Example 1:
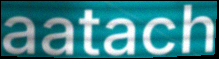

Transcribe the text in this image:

aatach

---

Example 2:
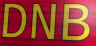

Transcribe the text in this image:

DNB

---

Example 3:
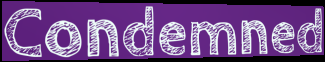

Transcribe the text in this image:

Condemned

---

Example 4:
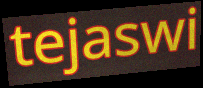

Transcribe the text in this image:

tejaswi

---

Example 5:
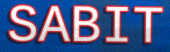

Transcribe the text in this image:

SABIT